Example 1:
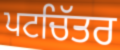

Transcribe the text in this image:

ਪਟਚਿੱਤਰ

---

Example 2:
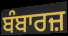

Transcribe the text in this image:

ਬੰਬਾਰਜ਼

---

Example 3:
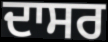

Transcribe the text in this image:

ਦਾਸਰ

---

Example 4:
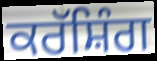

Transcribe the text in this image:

ਕਰੱਸ਼ਿੰਗ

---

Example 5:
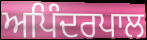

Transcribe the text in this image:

ਅਪਿੰਦਰਪਾਲ